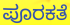
ಪೂರಕತೆ